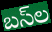
బస్‌ల